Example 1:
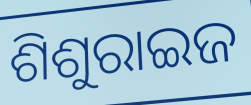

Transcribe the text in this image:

ଶିଶୁରାଇଜ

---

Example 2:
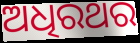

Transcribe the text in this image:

ଅଧିରଥର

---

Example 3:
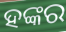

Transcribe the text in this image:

ହଙ୍କର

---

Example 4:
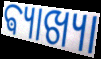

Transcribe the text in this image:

ଵ୍ୟାଖ୍ୟା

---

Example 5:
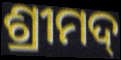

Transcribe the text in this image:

ଶ୍ରୀମଦ୍